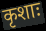
कृशाः